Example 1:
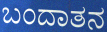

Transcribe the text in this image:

ಬಂದಾತನ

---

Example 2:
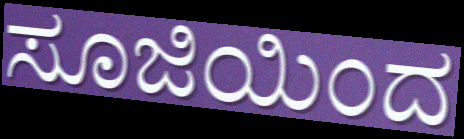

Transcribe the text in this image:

ಸೂಜಿಯಿಂದ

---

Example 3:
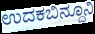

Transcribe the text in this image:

ಉದಕಬಿನ್ದೂನಿ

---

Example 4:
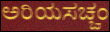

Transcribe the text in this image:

ಅರಿಯಸಚ್ಚಂ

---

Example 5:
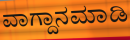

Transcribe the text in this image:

ವಾಗ್ದಾನಮಾಡಿ